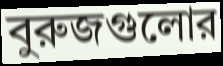
বুরুজগুলোর